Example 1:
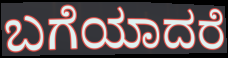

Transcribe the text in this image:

ಬಗೆಯಾದರೆ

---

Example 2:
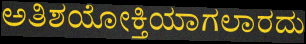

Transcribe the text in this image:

ಅತಿಶಯೋಕ್ತಿಯಾಗಲಾರದು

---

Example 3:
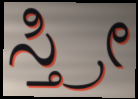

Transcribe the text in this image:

ಸ್ತ್ರೀ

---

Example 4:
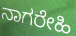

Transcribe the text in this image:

ನಾಗರೇಹಿ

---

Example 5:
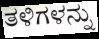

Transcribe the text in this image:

ತಳಿಗಳನ್ನು